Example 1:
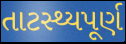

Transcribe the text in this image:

તાટસ્થ્યપૂર્ણ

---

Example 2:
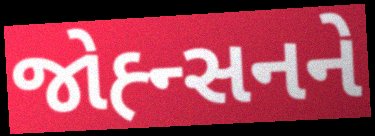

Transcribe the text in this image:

જોહ્ન્સનને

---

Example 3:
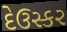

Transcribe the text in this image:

દેઉસ્કર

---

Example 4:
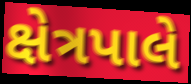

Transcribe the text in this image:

ક્ષેત્રપાલે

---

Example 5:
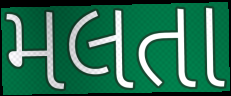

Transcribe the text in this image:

મલતા